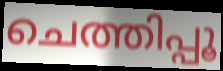
ചെത്തിപ്പൂ